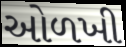
ઓળખી